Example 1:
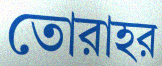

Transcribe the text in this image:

তোরাহর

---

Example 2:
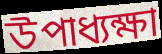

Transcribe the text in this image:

উপাধ্যক্ষা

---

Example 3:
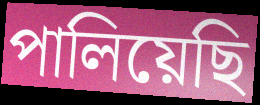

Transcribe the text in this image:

পালিয়েছি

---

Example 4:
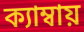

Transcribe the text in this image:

ক্যাম্বায়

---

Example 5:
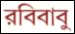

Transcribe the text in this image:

রবিবাবু